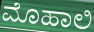
ಮೊಹಾಲಿ